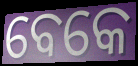
ବେକେ